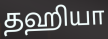
தஹியா